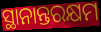
ସ୍ଥାନାନ୍ତରକ୍ଷମ